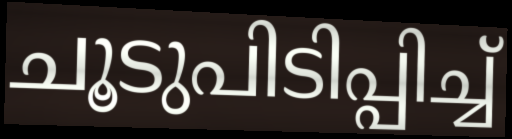
ചൂടുപിടിപ്പിച്ച്